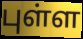
புள்ள